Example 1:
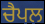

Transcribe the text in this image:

ਚੈਪਲ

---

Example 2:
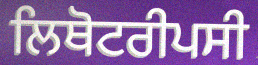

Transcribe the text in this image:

ਲਿਥੋਟਰੀਪਸੀ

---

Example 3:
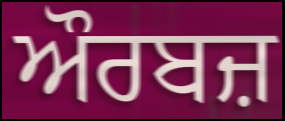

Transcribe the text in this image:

ਔਰਬਜ਼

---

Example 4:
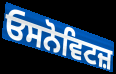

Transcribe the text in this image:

ਓਸਨੋਵਿਟਜ਼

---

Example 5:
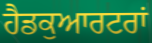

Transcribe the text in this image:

ਹੈਡਕੁਆਰਟਰਾਂ